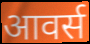
आवर्स